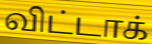
விட்டாக்